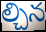
ల్చిన